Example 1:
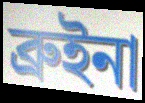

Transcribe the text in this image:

ব্রুইনা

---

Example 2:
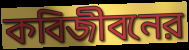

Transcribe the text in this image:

কবিজীবনের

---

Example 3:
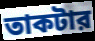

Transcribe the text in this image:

তাকটার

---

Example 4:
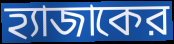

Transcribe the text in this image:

হ্যাজাকের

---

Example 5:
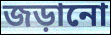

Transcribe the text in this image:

জড়ানো